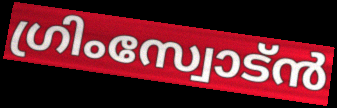
ഗ്രിംസ്വോട്ൻ